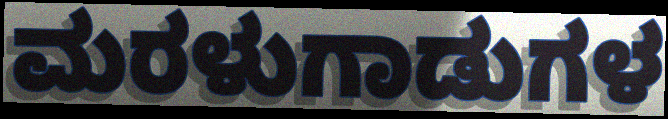
ಮರಳುಗಾಡುಗಳ